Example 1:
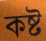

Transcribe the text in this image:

কষ্ট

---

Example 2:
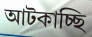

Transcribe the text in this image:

আটকাচ্ছি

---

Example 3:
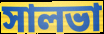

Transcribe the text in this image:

সালভা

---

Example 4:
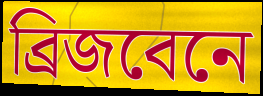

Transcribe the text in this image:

ব্রিজবেনে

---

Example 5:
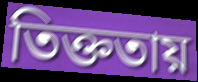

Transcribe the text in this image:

তিক্ততায়